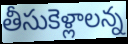
తీసుకెళ్లాలన్న